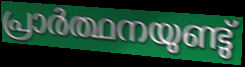
പ്രാർത്ഥനയുണ്ടു്